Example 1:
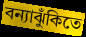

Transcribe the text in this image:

বন্যাঝুঁকিতে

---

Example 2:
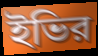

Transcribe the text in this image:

ইভির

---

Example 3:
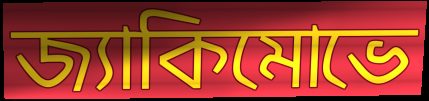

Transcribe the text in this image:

জ্যাকিমোভে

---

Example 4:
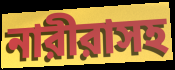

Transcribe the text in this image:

নারীরাসহ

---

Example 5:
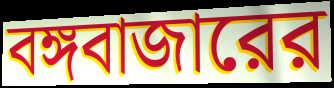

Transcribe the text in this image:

বঙ্গবাজারের